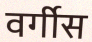
वर्गीस